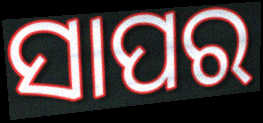
ସାପର